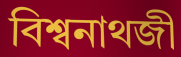
বিশ্বনাথজী